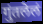
गुंतलेलं